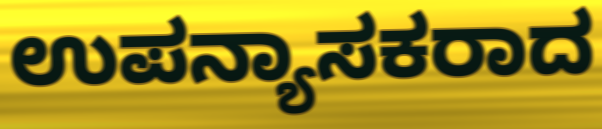
ಉಪನ್ಯಾಸಕರಾದ